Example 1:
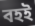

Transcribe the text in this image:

বহই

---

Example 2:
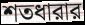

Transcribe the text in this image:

শতধারার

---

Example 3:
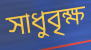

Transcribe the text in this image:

সাধুবৃক্ষ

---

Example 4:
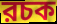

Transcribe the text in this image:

রচক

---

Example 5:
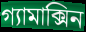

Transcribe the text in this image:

গ্যামাক্সিন